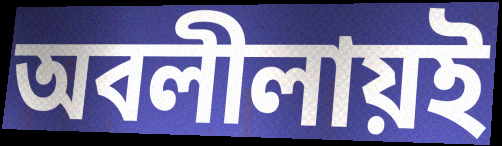
অবলীলায়ই